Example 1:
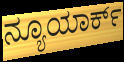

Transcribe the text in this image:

ನ್ಯೂಯಾರ್ಕ್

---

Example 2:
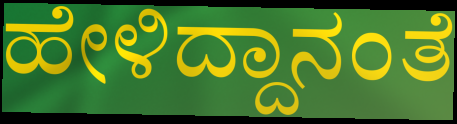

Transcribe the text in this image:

ಹೇಳಿದ್ದಾನಂತೆ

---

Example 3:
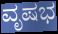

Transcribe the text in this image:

ವೃಷಭ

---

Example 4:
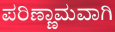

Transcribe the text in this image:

ಪರಿಣ್ಣಾಮವಾಗಿ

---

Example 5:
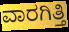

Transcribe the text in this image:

ವಾರಗಿತ್ತಿ